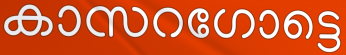
കാസറഗോട്ടെ